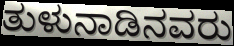
ತುಳುನಾಡಿನವರು